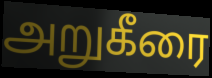
அறுகீரை